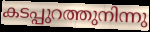
കടപ്പുറത്തുനിന്നു